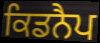
ਕਿਡਨੈਪ